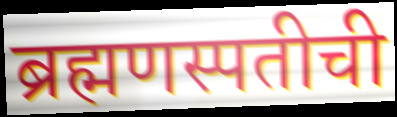
ब्रह्मणस्पतीची